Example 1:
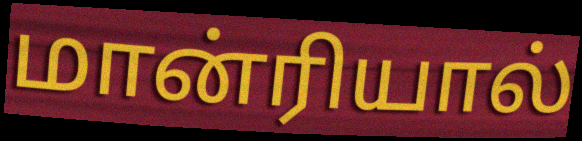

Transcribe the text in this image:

மான்ரியால்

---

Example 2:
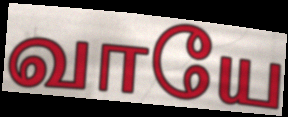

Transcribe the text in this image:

வாயே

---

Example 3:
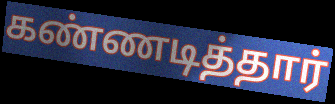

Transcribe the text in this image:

கண்ணடித்தார்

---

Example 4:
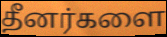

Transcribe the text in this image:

தீனர்களை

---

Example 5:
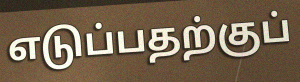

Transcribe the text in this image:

எடுப்பதற்குப்